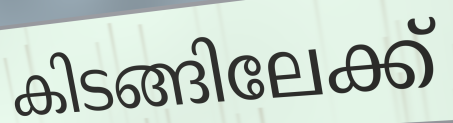
കിടങ്ങിലേക്ക്